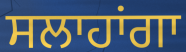
ਸਲਾਹਾਂਗਾ